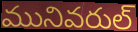
మునివరుల్